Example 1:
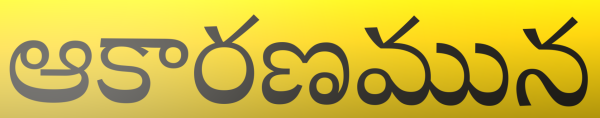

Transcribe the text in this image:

ఆకారణమున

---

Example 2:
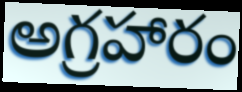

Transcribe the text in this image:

అగ్రహారం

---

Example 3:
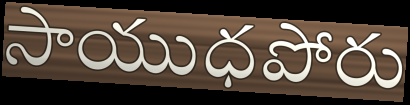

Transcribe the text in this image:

సాయుధపోరు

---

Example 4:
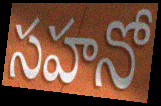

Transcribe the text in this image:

సహనో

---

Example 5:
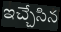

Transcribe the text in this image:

ఇచ్చేసిన